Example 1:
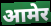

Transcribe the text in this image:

आमेर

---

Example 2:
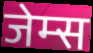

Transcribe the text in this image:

जेम्स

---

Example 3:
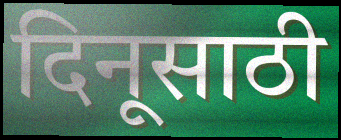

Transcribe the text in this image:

दिनूसाठी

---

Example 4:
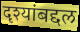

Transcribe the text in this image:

दृश्यांबद्दल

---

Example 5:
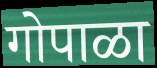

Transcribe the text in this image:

गोपाळा